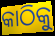
କାଠିକୁ